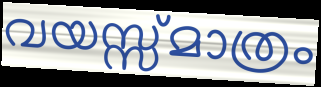
വയസ്സ്മാത്രം